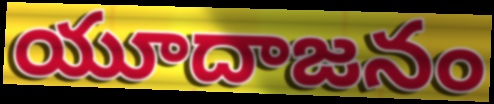
యూదాజనం